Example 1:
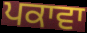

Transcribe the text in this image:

ਪਕਾਵਾ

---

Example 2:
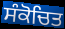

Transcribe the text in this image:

ਸੰਕੋਚਿਤ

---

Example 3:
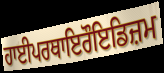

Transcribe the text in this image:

ਹਾਈਪਰਥਾਇਰੌਇਡਿਜ਼ਮ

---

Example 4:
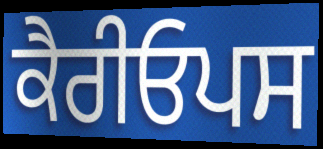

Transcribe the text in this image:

ਕੈਰੀਓਪਸ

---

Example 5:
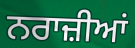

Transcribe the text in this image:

ਨਰਾਜ਼ੀਆਂ